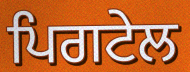
ਪਿਗਟੇਲ